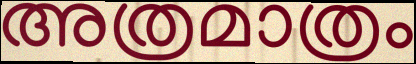
അത്രമാത്രം